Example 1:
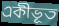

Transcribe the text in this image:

একীভূত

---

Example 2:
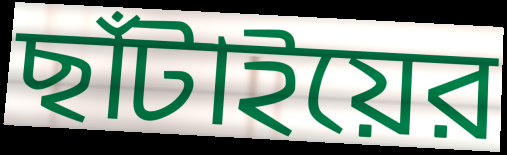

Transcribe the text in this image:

ছাঁটাইয়ের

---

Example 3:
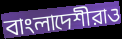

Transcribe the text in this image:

বাংলাদেশীরাও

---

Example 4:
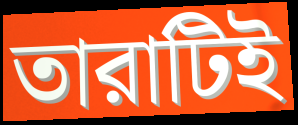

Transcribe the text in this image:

তারাটিই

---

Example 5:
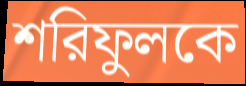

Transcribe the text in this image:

শরিফুলকে